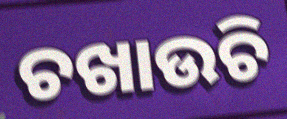
ଚଖାଉଚି